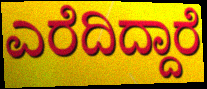
ಎರೆದಿದ್ದಾರೆ